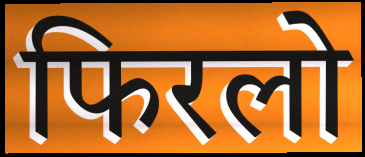
फिरलो